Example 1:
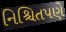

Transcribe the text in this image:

નિશ્ચિતપણે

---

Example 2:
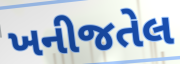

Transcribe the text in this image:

ખનીજતેલ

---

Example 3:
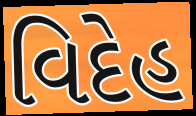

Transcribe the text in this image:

વિદેહ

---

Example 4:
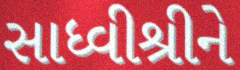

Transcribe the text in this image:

સાધ્વીશ્રીને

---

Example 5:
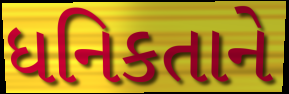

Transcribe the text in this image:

ધનિકતાને